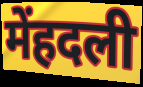
मेंहदली